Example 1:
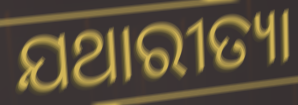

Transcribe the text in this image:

ଯଥାରୀତ୍ୟା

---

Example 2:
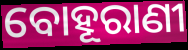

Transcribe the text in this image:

ବୋହୂରାଣୀ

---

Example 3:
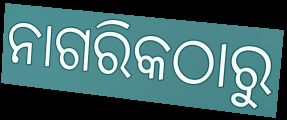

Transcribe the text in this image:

ନାଗରିକଠାରୁ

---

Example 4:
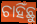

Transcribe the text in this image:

ଚାହିଁଛୁ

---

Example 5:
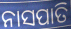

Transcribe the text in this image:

ନାସପାତି